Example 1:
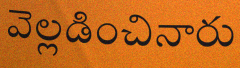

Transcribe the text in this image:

వెల్లడించినారు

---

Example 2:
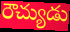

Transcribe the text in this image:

రౌచ్యుడు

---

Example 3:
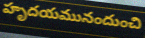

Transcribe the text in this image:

హృదయమునందుంచి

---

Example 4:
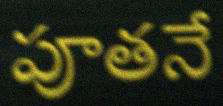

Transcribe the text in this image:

పూతనే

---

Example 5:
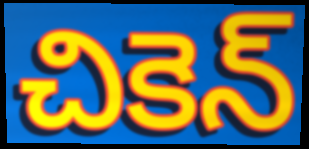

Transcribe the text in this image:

చికెన్